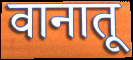
वानातू